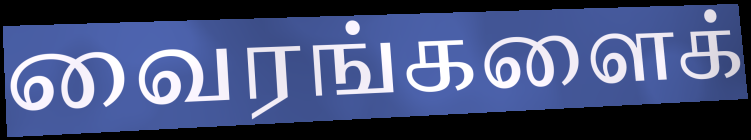
வைரங்களைக்